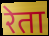
रेता